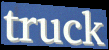
truck